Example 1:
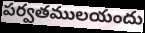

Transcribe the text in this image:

పర్వతములయందు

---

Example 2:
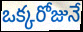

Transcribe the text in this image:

ఒక్కరోజునే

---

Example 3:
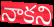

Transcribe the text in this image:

నాకని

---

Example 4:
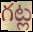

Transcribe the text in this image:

గట్ల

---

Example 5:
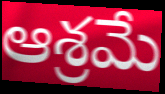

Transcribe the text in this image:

ఆశ్రమే